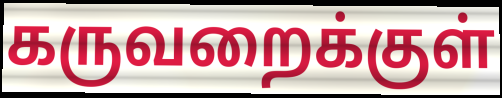
கருவறைக்குள்